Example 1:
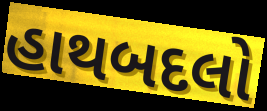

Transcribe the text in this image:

હાથબદલો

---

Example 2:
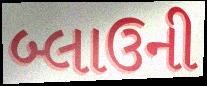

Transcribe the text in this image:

બ્લાઉની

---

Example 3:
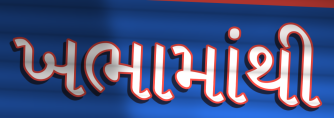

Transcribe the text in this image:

ખભામાંથી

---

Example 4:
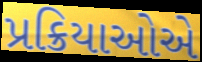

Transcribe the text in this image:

પ્રક્રિયાઓએ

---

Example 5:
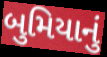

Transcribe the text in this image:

બુમિયાનું